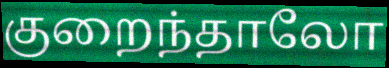
குறைந்தாலோ